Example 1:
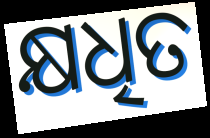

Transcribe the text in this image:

କ୍ଷଧିତ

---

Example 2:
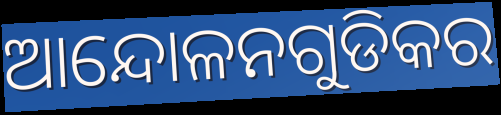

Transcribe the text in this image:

ଆନ୍ଦୋଳନଗୁଡିକର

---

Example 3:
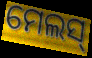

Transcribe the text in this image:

ମେଲସ୍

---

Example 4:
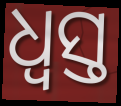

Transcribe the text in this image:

ଧ୍ବସ୍ତ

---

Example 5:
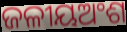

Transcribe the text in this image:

ଜଳୀୟଅଂଶ